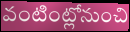
వంటింట్లోనుంచి